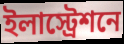
ইলাস্ট্রেশনে